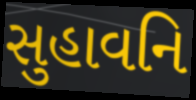
સુહાવનિ